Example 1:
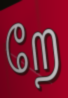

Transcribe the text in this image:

றே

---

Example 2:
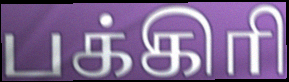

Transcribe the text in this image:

பக்கிரி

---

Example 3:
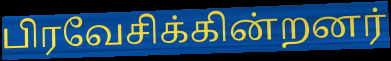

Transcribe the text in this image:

பிரவேசிக்கின்றனர்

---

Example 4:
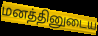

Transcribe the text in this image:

மனத்தினுடைய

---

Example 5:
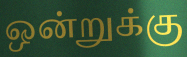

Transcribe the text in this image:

ஒன்றுக்கு